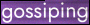
gossiping